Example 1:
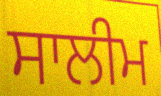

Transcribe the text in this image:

ਸਾਲੀਮ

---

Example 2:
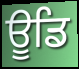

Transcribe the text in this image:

ਊਡਿ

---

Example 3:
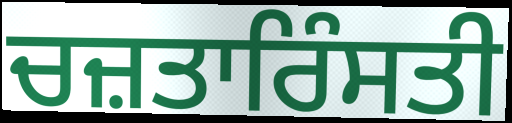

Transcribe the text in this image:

ਚਜ਼ਤਾਰਿੰਸਤੀ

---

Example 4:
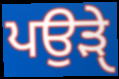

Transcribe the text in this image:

ਪਉੜੑੇ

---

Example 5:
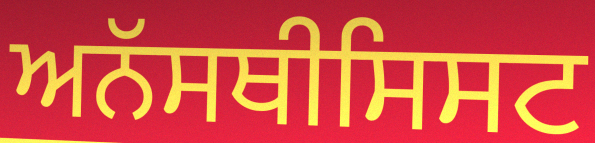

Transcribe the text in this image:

ਅਨੱਸਥੀਸਿਸਟ